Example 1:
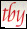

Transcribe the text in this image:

tby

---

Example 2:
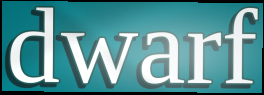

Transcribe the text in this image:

dwarf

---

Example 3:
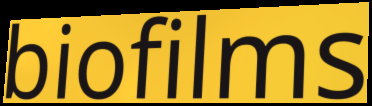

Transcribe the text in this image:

biofilms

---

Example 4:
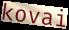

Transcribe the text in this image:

kovai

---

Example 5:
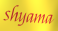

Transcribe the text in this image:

shyama